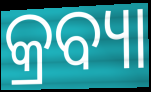
କ୍ରବ୍ୟା